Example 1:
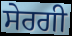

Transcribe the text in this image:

ਸੇਰਗੀ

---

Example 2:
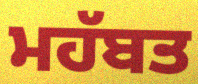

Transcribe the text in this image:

ਮਹੱਬਤ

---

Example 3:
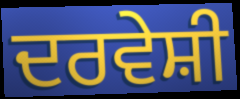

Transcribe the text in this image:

ਦਰਵੇਸ਼ੀ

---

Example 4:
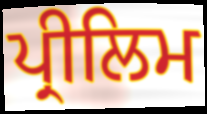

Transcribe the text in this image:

ਪ੍ਰੀਲਿਮ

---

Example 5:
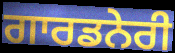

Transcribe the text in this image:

ਗਾਰਡਨੇਰੀ